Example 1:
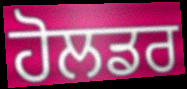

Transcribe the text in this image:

ਹੋਲਡਰ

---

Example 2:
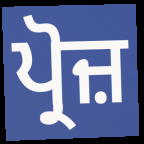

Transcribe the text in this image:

ਪ੍ਰੋਜ਼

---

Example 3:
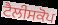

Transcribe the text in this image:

ਟੈਲੀਸਕੋਪ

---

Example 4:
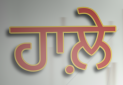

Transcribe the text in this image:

ਹਾਲ਼ੇ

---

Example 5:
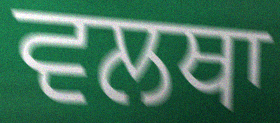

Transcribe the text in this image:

ਵਲਥਾ